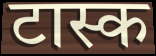
टास्क